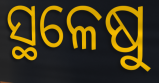
ସ୍ଥଳେଷୁ